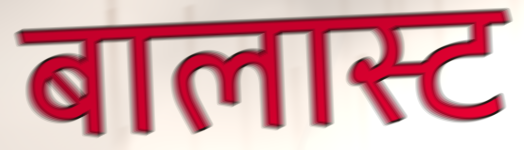
बालास्ट